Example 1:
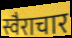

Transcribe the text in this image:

स्वैराचार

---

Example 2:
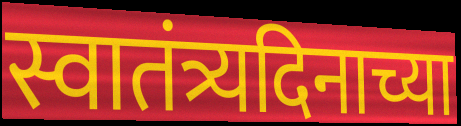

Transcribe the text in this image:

स्वातंत्र्यदिनाच्या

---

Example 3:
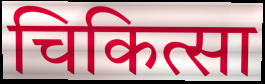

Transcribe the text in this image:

चिकित्सा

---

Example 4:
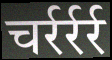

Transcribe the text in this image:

चर्रर्रर्र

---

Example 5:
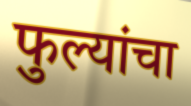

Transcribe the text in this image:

फुल्यांचा